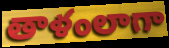
తాళంలాగా